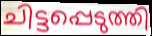
ചിട്ടപ്പെടുത്തി